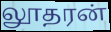
லூதரன்